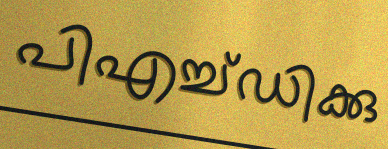
പിഎച്ച്ഡിക്കു